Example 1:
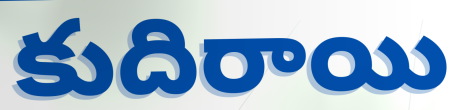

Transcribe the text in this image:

కుదిరాయి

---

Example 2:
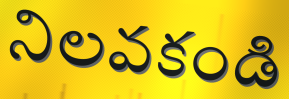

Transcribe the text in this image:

నిలవకండి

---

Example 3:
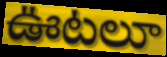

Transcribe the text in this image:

ఊటలూ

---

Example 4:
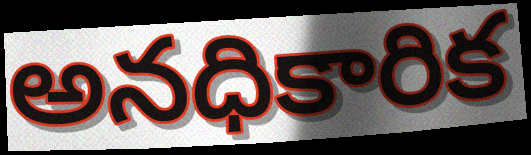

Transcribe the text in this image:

అనధికారిక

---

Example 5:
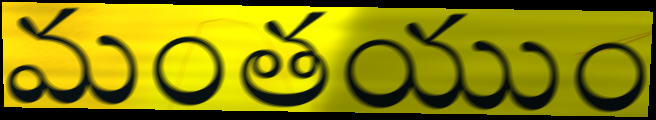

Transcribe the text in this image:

మంతయుం